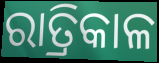
ରାତ୍ରିକାଳ